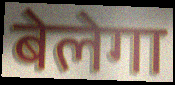
बेलेगा